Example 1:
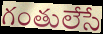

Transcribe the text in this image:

గంతులేసే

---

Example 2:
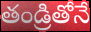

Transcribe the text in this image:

తండ్రితోనే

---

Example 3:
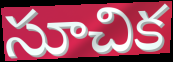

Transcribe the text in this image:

సూచిక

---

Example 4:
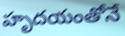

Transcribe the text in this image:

హృదయంతోనే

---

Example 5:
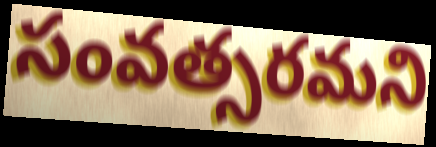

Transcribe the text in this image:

సంవత్సరమని